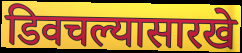
डिवचल्यासारखे